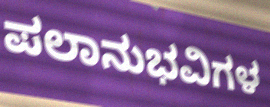
ಪಲಾನುಭವಿಗಳ